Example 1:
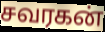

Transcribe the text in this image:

சவரகன்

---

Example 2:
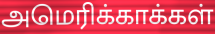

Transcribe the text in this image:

அமெரிக்காக்கள்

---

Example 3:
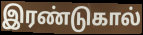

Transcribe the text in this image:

இரண்டுகால்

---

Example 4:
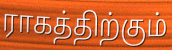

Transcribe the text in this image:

ராகத்திற்கும்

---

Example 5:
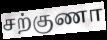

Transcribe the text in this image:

சற்குணா